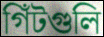
গিঁটগুলি